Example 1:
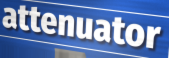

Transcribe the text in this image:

attenuator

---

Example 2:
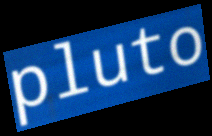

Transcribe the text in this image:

pluto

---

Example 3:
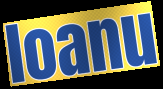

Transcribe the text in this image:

loanu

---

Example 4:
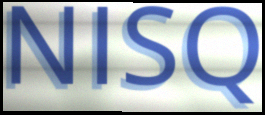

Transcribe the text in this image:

NISQ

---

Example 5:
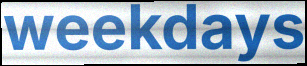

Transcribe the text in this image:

weekdays